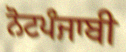
ਨੋਟਪੰਜਾਬੀ